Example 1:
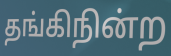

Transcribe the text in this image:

தங்கிநின்ற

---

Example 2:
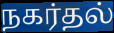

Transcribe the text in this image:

நகர்தல்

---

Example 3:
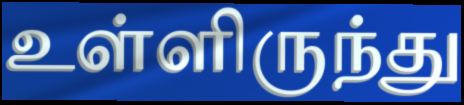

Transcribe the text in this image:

உள்ளிருந்து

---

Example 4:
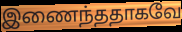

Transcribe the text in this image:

இணைந்ததாகவே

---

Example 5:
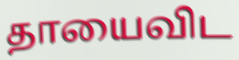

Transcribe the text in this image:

தாயைவிட